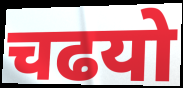
चढयो